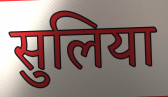
सुलिया